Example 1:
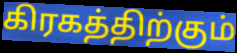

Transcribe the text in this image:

கிரகத்திற்கும்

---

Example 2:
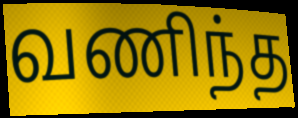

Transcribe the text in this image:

வணிந்த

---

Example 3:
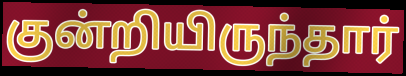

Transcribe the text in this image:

குன்றியிருந்தார்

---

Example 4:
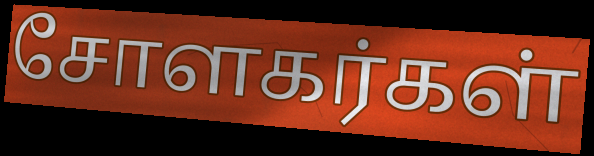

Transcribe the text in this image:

சோளகர்கள்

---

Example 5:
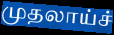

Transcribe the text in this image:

முதலாய்ச்